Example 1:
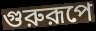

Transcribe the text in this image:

গুরুরূপে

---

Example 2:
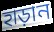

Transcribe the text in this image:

হাড়ান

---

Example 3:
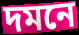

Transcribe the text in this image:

দমনে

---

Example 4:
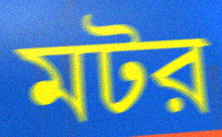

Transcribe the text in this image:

মটর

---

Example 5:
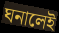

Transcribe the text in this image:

ঘনালেই